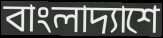
বাংলাদ্যাশে